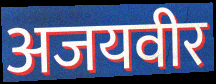
अजयवीर